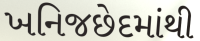
ખનિજછેદમાંથી